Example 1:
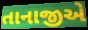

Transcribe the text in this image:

તાનાજીએ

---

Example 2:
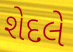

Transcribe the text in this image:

શેદલે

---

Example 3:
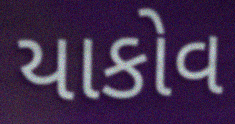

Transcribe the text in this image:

યાકોવ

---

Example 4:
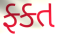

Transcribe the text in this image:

ફ્ક્ત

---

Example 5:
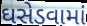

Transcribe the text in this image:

ઘસેડવામાં